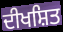
ਦੀਖਸ਼ਿਤ